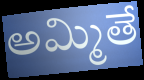
అమ్మితే